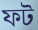
ফট